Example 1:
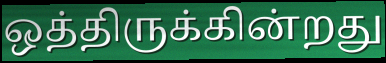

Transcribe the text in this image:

ஒத்திருக்கின்றது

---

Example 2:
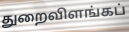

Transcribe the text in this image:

துறைவிளங்கப்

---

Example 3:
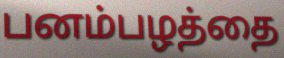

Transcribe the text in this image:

பனம்பழத்தை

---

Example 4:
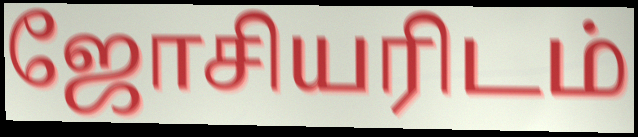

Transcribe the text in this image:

ஜோசியரிடம்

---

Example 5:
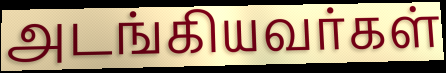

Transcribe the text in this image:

அடங்கியவர்கள்